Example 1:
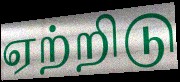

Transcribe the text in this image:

ஏற்றிடு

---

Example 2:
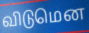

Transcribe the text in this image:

விடுமென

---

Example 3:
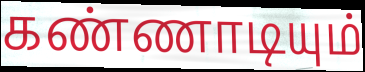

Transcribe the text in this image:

கண்ணாடியும்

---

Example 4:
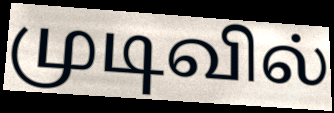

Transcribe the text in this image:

முடிவில்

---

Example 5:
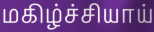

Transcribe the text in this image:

மகிழ்ச்சியாய்